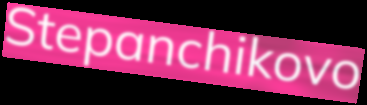
Stepanchikovo